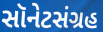
સૉનેટસંગ્રહ